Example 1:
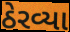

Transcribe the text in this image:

ઠેરવ્યા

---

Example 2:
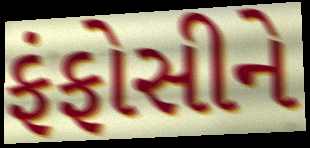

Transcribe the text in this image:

ફંફોસીને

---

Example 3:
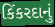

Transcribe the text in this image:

કિંકરદાનું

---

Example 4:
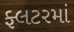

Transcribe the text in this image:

ફ્લટરમાં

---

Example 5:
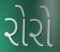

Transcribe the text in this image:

રોરો